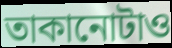
তাকানোটাও